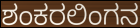
ಶಂಕರಲಿಂಗನ